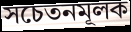
সচেতনমূলক